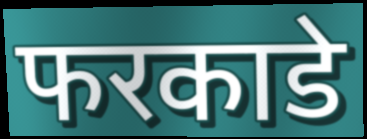
फरकाडे